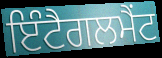
ਇੰਟੈਗਲਮੈਂਟ